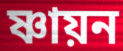
ষ্ণায়ন